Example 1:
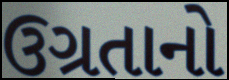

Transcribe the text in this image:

ઉગ્રતાનો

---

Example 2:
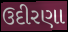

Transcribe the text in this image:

ઉદીરણા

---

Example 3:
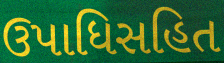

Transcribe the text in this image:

ઉપાધિસહિત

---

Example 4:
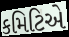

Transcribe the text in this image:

કમિટિએ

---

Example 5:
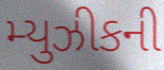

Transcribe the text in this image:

મ્યુઝીકની